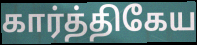
கார்த்திகேய